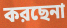
করছেনা